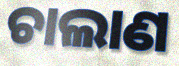
ଚାଲାଣ